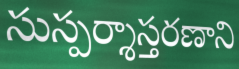
సుస్పర్శాస్తరణాని